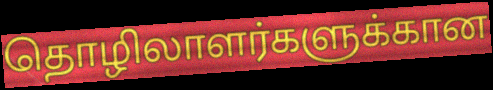
தொழிலாளர்களுக்கான